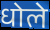
धोले